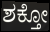
ಶಕ್ತೋ